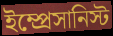
ইম্প্রেসানিস্ট